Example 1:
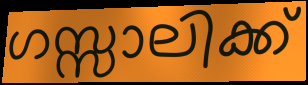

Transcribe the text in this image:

ഗസ്സാലിക്ക്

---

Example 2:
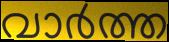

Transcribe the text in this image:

വാർത്ത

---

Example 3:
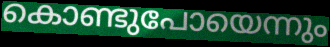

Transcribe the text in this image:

കൊണ്ടുപോയെന്നും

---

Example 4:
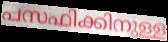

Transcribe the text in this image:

പസഫിക്കിനുള്ള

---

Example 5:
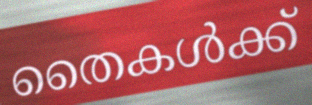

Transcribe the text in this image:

തൈകൾക്ക്